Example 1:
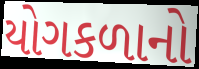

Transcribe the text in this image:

યોગકળાનો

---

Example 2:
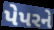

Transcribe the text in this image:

પેપરને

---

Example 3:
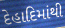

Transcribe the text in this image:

દેહાદિમાંથી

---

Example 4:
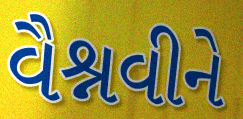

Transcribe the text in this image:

વૈશ્નવીને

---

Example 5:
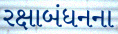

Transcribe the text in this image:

રક્ષાબંધનના